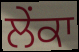
ਲੇਂਕਾ